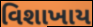
વિશાખાય